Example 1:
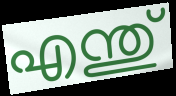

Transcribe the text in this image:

എന്തു്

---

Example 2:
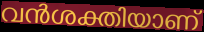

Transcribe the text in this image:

വൻശക്തിയാണ്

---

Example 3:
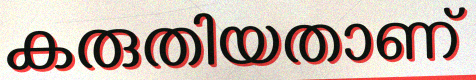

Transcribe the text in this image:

കരുതിയതാണ്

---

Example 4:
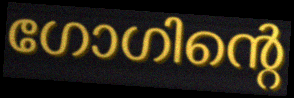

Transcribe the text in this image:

ഗോഗിന്റെ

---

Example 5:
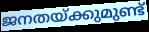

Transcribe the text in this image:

ജനതയ്ക്കുമുണ്ട്